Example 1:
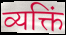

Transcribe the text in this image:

व्यक्तिं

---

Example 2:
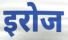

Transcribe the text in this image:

इरोज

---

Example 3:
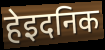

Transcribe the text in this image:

हेइदनिक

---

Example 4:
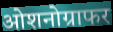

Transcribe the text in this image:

ओशनोग्राफर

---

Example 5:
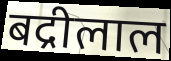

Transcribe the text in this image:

बद्रीलाल